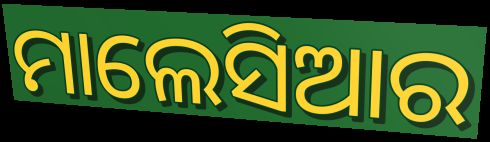
ମାଲେସିଆର